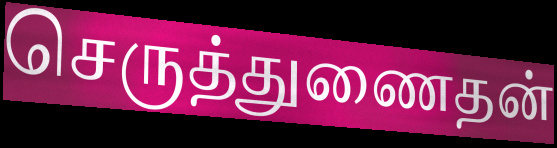
செருத்துணைதன்